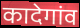
कादेगांव